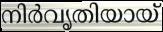
നിർവൃതിയായ്